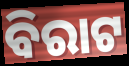
ବିରାଟ